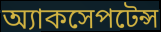
অ্যাকসেপটেন্স